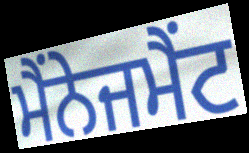
ਮੈਂਨੇਜਮੈਂਟ